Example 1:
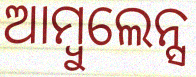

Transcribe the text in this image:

ଆମ୍ବୁଲେନ୍ସ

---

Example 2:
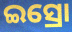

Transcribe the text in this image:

ଇସ୍ରୋ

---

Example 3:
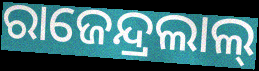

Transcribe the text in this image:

ରାଜେନ୍ଦ୍ରଲାଲ୍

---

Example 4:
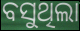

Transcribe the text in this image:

ବସୁଥିଲା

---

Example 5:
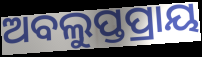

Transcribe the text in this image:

ଅବଲୁପ୍ତପ୍ରାୟ